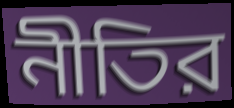
নীতির